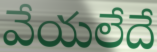
వేయలేదే